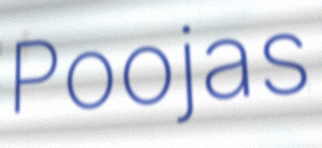
Poojas